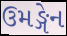
ઉમઙ્ગેન